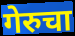
गेरुचा